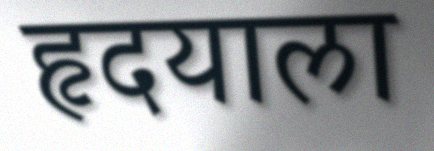
हृदयाला